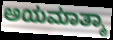
ಅಯಮಾತ್ಮಾ